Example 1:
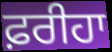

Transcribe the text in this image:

ਫ਼ਰੀਹਾ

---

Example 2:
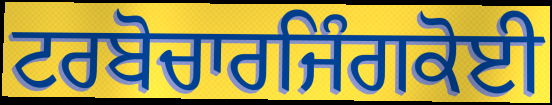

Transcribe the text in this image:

ਟਰਬੋਚਾਰਜਿੰਗਕੋਈ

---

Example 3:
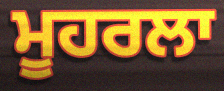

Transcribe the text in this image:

ਮੂਹਰਲਾ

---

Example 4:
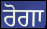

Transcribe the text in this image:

ਰੋਗਾ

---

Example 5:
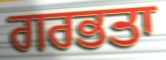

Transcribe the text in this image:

ਗਰਭਤਾ